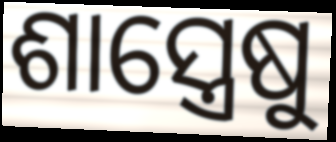
ଶାସ୍ତ୍ରେଷୁ